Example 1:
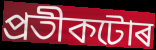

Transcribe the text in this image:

প্ৰতীকটোৰ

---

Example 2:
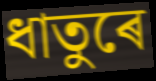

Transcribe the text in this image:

ধাতুৰে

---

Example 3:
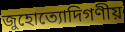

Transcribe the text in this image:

জুহোত্যোদিগণীয়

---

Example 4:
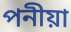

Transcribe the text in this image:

পনীয়া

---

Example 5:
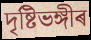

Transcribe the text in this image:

দৃষ্টিভঙ্গীৰ